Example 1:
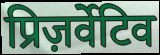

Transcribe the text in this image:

प्रिज़र्वेटिव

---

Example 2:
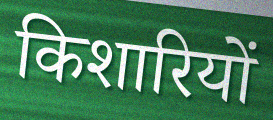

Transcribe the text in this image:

किशारियों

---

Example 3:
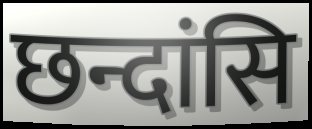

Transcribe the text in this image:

छन्दांसि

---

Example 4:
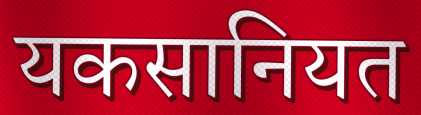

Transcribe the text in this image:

यकसानियत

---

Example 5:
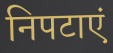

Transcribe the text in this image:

निपटाएं